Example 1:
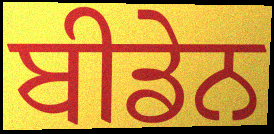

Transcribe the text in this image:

ਬੀਡੇਨ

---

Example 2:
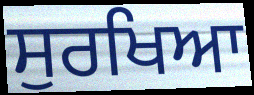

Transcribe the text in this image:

ਸੁਰਖਿਆ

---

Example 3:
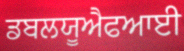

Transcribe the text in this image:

ਡਬਲਯੂਐਫਆਈ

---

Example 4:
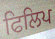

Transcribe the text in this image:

ਫਿਲਿਪ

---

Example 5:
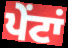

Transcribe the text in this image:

ਪੇਂਟਾਂ